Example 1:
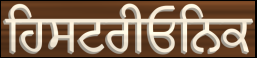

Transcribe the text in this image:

ਹਿਸਟਰੀਓਨਿਕ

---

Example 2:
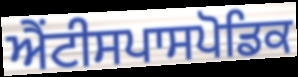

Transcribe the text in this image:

ਐਂਟੀਸਪਾਸਪੋਡਿਕ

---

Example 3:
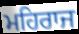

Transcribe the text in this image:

ਮਹਿਰਾਜ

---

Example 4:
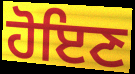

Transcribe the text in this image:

ਹੋਇਣ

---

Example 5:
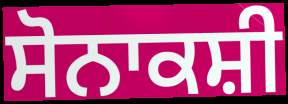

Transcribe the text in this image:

ਸੋਨਾਕਸ਼ੀ